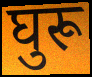
घुरू